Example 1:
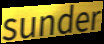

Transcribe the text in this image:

sunder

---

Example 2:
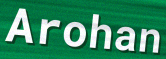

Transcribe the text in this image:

Arohan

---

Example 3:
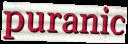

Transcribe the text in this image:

puranic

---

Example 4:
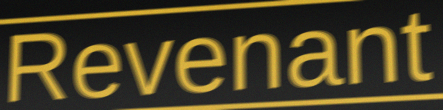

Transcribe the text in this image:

Revenant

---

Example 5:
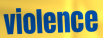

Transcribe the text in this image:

violence